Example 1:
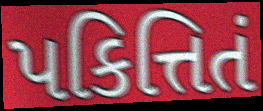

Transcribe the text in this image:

પકિત્તિતં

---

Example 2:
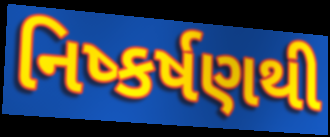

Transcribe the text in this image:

નિષ્કર્ષણથી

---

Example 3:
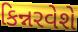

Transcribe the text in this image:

કિન્નરવેશે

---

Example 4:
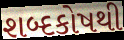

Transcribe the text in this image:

શબ્દકોષથી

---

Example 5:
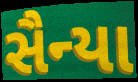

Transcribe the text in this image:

સૈન્યા